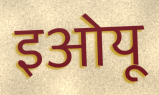
इओयू